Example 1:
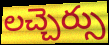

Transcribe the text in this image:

లచ్చెర్సు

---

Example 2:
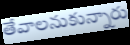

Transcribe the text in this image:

తేవాలనుకున్నారు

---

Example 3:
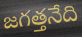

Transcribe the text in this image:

జగత్తనేది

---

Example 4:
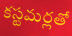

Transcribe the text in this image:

కస్టమర్లతో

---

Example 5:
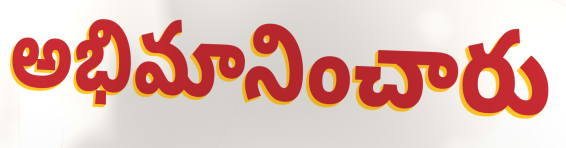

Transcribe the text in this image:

అభిమానించారు